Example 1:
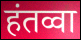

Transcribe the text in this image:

हंतव्वा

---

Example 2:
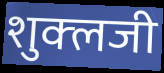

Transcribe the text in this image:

शुक्‍लजी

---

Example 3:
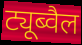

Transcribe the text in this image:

ट्यूब्वैल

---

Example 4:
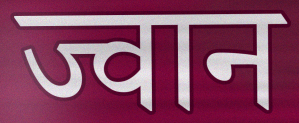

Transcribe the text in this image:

ज्वान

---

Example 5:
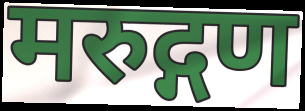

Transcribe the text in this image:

मरुद्गण